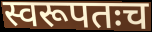
स्वरूपतःच